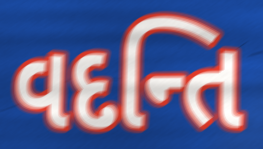
વદન્તિ